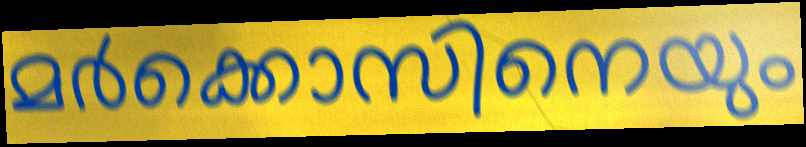
മർക്കൊസിനെയും